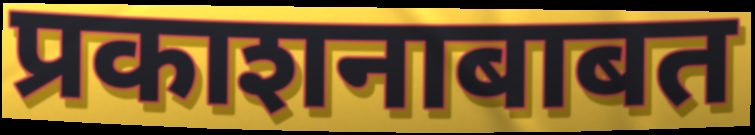
प्रकाशनाबाबत